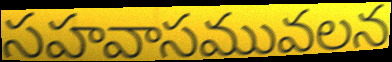
సహవాసమువలన